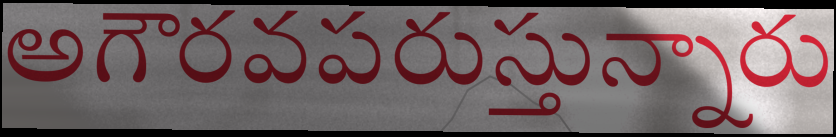
అగౌరవపరుస్తున్నారు